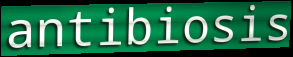
antibiosis